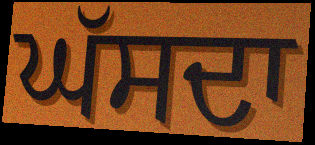
ਘੱਸਦਾ